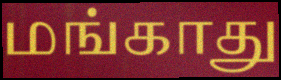
மங்காது